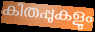
കിതപ്പുകളും